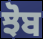
ਝੋਬ